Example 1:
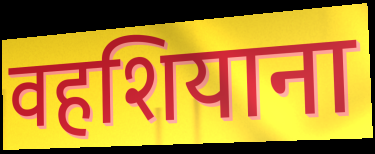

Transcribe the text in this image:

वहशियाना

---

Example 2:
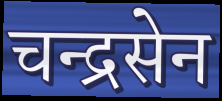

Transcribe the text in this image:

चन्द्रसेन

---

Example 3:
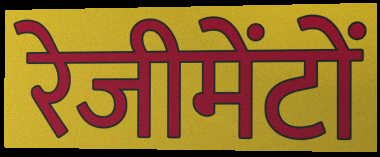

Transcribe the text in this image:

रेजीमेंटों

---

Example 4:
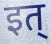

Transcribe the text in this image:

इत्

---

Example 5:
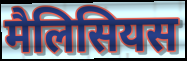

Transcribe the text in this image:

मैलिसियस